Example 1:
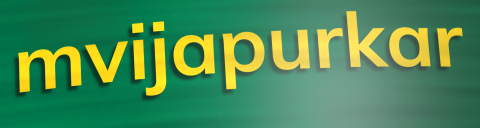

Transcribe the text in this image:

mvijapurkar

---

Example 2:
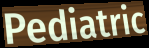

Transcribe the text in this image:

Pediatric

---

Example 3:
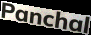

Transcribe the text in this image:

Panchal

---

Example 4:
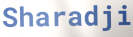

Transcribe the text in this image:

Sharadji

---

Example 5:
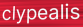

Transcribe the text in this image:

clypealis